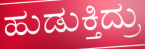
ಹುಡುಕ್ತಿದ್ರು